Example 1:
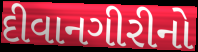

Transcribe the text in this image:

દીવાનગીરીનો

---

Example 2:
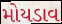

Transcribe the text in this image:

મોયડાવ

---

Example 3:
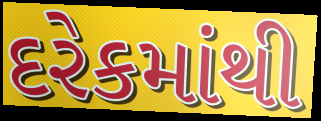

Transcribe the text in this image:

દરેકમાંથી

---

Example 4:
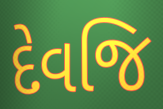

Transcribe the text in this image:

દેવજિ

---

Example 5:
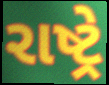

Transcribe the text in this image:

રાષ્ટ્રે